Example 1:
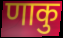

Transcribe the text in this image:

णाकु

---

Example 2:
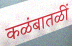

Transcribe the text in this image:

कळंबातळीं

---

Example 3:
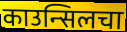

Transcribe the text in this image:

काउन्सिलचा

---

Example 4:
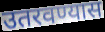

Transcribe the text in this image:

उतरवण्यास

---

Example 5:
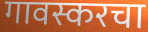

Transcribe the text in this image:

गावस्करचा